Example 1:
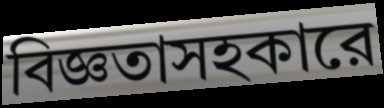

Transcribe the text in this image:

বিজ্ঞতাসহকারে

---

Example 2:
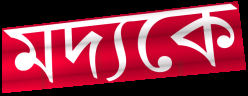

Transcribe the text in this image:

মদ্যকে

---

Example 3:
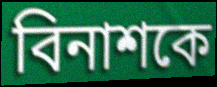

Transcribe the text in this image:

বিনাশকে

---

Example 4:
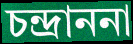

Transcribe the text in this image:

চন্দ্রাননা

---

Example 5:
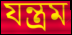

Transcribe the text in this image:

যন্ত্রম